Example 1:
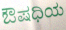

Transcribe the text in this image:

ಔಷಧಿಯ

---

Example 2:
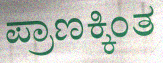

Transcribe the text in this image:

ಪ್ರಾಣಕ್ಕಿಂತ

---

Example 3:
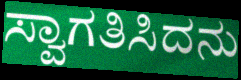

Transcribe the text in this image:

ಸ್ವಾಗತಿಸಿದನು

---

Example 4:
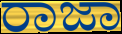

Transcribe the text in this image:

ರಾಜಾ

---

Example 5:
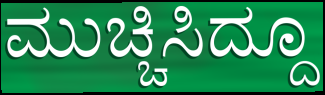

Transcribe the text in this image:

ಮುಚ್ಚಿಸಿದ್ದೂ